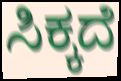
ಸಿಕ್ಕದೆ